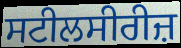
ਸਟੀਲਸੀਰੀਜ਼